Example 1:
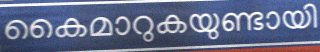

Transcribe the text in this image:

കൈമാറുകയുണ്ടായി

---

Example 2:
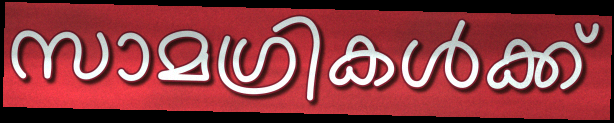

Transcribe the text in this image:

സാമഗ്രികൾക്ക്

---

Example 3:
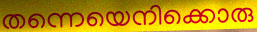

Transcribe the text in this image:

തന്നെയെനിക്കൊരു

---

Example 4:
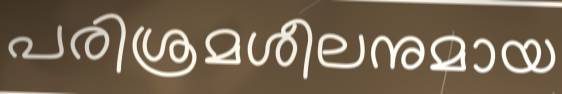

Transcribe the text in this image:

പരിശ്രമശീലനുമായ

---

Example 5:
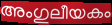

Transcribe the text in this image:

അംഗുലീയകം